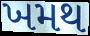
ખમથ